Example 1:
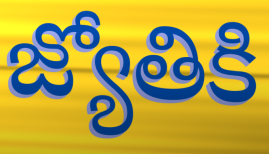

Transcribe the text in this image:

జ్యోతికి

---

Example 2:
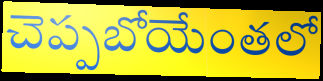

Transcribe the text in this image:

చెప్పబోయేంతలో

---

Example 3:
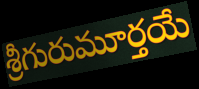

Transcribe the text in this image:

శ్రీగురుమూర్తయే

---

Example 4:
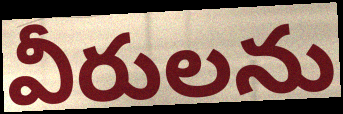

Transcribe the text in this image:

వీరులను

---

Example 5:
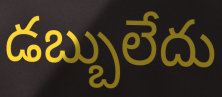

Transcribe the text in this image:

డబ్బులేదు